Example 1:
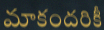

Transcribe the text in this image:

మాకందరికీ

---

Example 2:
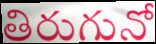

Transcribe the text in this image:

తిరుగునో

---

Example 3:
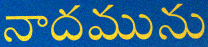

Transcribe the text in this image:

నాదమును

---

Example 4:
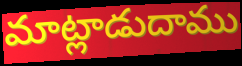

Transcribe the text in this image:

మాట్లాడుదాము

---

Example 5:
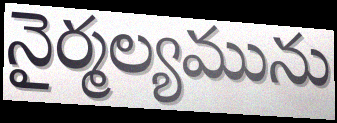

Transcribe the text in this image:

నైర్మల్యమును